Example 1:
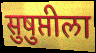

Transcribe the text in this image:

सुषुप्तीला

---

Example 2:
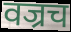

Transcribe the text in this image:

वज्रच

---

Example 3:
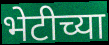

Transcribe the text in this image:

भेटीच्या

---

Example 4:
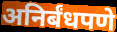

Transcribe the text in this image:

अनिर्बंधपणे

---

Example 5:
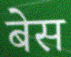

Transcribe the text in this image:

बेस